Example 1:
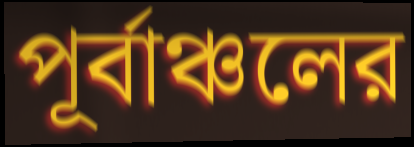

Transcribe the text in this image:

পূর্বাঞ্চলের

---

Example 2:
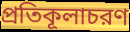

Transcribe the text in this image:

প্রতিকূলাচরণ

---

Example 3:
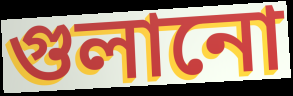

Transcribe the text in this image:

গুলানো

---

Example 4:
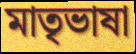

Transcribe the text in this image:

মাতৃভাষা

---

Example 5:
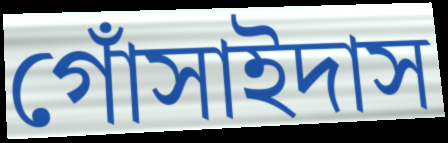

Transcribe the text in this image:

গোঁসাইদাস